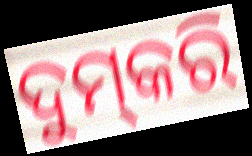
ଦୁମ୍‍କରି